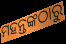
ମହନ୍ତଙ୍କଠାରୁ